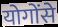
योगोंसे